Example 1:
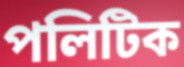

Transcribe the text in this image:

পলিটিক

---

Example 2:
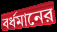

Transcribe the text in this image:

বর্ধমানের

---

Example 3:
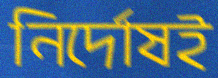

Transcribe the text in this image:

নির্দোষই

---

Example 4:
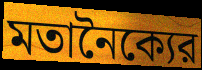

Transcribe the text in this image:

মতানৈক্যের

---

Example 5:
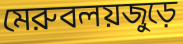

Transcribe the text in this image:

মেরুবলয়জুড়ে